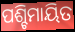
ପଶ୍ଚିମାୟିତ